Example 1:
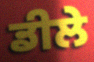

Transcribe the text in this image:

ਡੀਲੇ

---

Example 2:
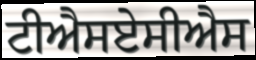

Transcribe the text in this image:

ਟੀਐਸਏਸੀਐਸ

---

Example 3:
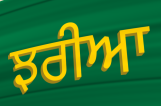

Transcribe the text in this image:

ਝਰੀਆ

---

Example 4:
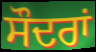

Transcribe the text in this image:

ਸੌਦਰਾਂ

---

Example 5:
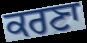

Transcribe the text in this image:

ਕਰਣਾ